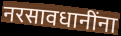
नरसावधानींना